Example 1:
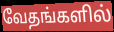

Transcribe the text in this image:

வேதங்களில்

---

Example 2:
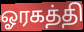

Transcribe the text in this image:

ஓரகத்தி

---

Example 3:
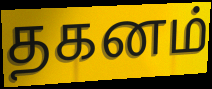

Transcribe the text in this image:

தகனம்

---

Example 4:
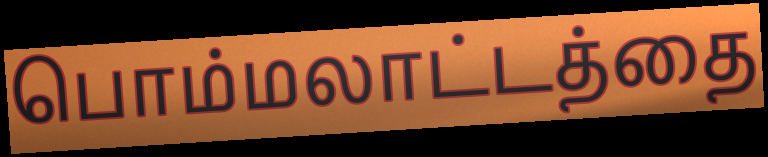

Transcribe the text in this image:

பொம்மலாட்டத்தை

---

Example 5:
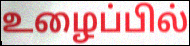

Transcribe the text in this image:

உழைப்பில்